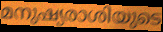
മനുഷ്യരാശിയുടെ